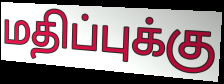
மதிப்புக்கு